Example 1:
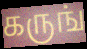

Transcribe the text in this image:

கருங்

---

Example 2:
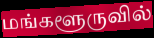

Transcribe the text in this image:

மங்களூருவில்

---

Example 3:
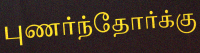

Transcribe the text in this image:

புணர்ந்தோர்க்கு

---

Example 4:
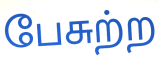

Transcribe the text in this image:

பேசுற்ற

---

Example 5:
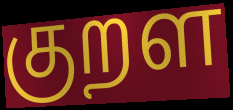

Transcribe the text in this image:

குறள